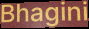
Bhagini